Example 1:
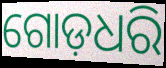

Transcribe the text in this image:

ଗୋଡ଼ଧରି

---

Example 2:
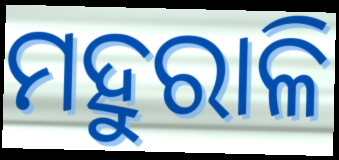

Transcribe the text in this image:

ମହୁରାଳି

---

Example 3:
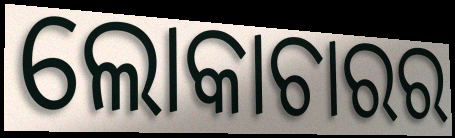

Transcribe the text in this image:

ଲୋକାଚାରର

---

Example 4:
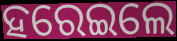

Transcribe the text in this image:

ହରେଇଲେ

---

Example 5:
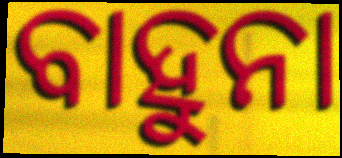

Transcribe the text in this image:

ବାହୁନା